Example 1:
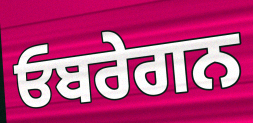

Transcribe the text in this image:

ਓਬਰੇਗਨ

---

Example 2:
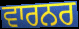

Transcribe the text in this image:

ਵਾਰਨਰ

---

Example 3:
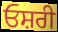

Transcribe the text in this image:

ਓਸ਼ਰੀ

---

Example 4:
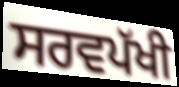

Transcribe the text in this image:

ਸਰਵਪੱਖੀ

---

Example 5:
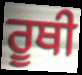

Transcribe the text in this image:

ਰੂਥੀ